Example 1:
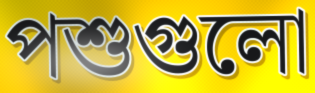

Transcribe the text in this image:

পশুগুলো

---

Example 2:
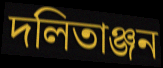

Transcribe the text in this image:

দলিতাঞ্জন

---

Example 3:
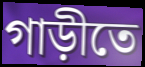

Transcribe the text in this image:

গাড়ীতে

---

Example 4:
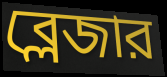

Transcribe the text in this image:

ব্লেজার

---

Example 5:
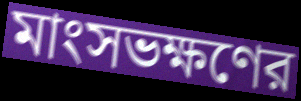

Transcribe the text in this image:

মাংসভক্ষণের